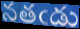
నతఁడు